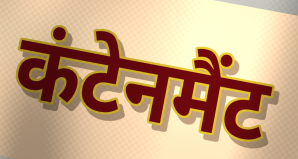
कंटेनमैंट